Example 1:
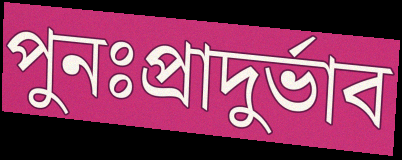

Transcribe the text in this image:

পুনঃপ্রাদুর্ভাব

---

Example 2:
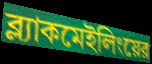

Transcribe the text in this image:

ব্ল্যাকমেইলিংয়ের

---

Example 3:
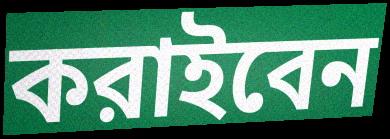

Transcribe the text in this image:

করাইবেন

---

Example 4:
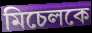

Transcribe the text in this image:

মিচেলকে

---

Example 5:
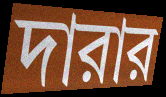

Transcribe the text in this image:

দারার